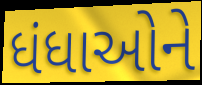
ધંધાઓને